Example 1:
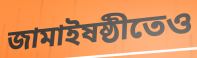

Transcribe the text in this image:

জামাইষষ্ঠীতেও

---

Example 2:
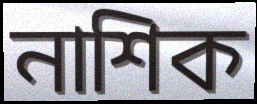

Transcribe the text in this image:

নাশিক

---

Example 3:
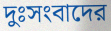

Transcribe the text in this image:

দুঃসংবাদের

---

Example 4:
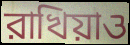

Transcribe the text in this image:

রাখিয়াও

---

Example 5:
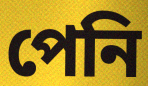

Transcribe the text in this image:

পেনি